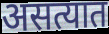
असत्यात